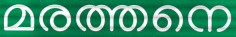
മരത്തനെ